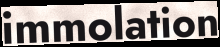
immolation